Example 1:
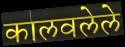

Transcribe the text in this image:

कालवलेले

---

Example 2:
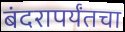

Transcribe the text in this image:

बंदरापर्यंतचा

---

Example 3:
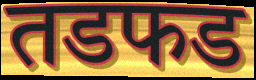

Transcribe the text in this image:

तडफड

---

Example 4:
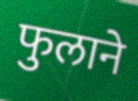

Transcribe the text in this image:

फुलाने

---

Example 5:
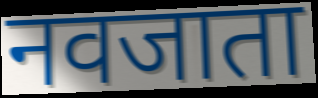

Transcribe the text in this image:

नवजाता